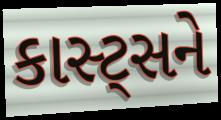
કાસ્ટ્સને